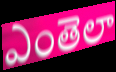
ఎంతెలా